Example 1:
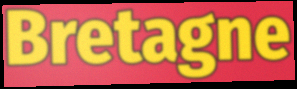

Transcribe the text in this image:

Bretagne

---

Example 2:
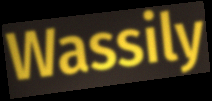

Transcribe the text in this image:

Wassily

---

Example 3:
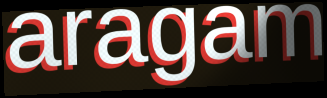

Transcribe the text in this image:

aragam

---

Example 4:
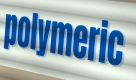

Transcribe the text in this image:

polymeric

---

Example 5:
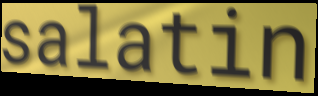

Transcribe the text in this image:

salatin